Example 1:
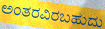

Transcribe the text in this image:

ಅಂತರವಿರಬಹುದು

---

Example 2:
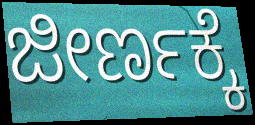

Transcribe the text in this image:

ಜೀರ್ಣಕ್ಕೆ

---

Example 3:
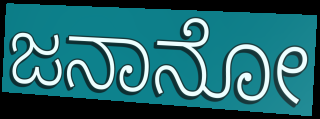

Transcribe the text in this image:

ಜನಾನೋ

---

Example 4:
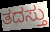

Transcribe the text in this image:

ತದಸ್ತು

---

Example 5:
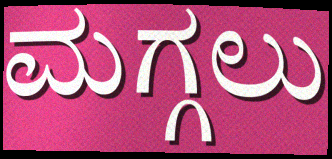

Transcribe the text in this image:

ಮಗ್ಗಲು